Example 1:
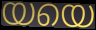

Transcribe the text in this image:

യയെ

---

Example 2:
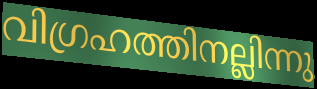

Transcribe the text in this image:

വിഗ്രഹത്തിനല്ലിന്നു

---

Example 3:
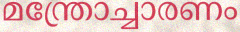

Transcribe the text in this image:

മന്ത്രോച്ചാരണം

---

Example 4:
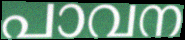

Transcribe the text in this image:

പാവന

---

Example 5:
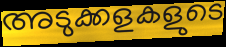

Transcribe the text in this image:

അടുക്കളകളുടെ